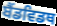
ਬੈਂਡਵਿਡਥ